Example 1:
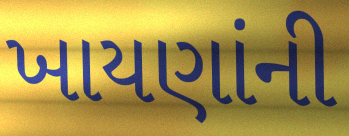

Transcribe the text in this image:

ખાયણાંની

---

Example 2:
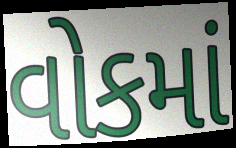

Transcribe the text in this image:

વોકમાં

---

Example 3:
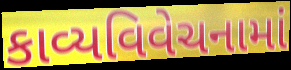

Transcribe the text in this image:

કાવ્યવિવેચનામાં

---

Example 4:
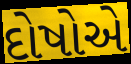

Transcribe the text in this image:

દોષોએ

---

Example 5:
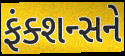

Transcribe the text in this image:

ફંક્શન્સને